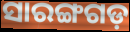
ସାରଙ୍ଗଗଡ଼